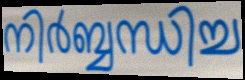
നിർബ്ബന്ധിച്ച